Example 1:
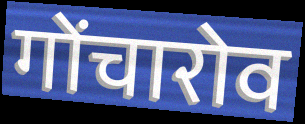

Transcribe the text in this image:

गोंचारोव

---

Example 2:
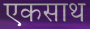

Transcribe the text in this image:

एकसाथ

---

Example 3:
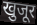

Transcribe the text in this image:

खुजूर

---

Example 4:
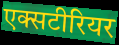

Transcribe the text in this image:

एक्सटीरियर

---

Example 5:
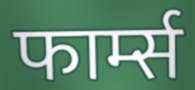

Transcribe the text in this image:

फार्म्स